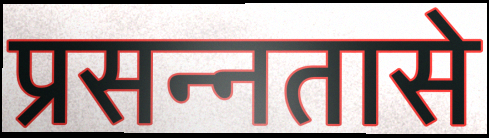
प्रसन्नतासे